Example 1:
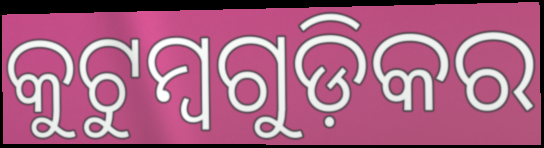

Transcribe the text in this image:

କୁଟୁମ୍ବଗୁଡ଼ିକର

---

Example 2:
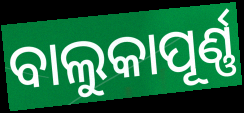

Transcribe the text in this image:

ବାଲୁକାପୂର୍ଣ୍ଣ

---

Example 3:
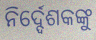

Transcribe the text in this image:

ନିର୍ଦ୍ଦେଶକଙ୍କୁ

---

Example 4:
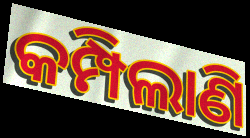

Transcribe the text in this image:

କମ୍ପିଲାଣି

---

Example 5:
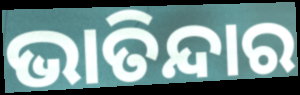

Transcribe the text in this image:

ଭାତିନ୍ଦାର